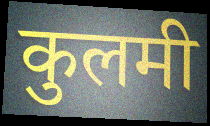
कुलमी